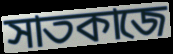
সাতকাজে